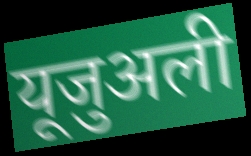
यूजुअली